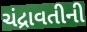
ચંદ્રાવતીની